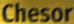
Chesor